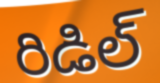
రిడిల్